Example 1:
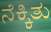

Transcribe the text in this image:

ನೆಕ್ಕಿತು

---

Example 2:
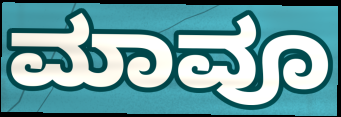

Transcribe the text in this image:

ಮಾವೂ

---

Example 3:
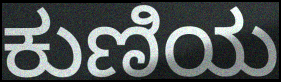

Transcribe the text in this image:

ಕುಣಿಯ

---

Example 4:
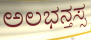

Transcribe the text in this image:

ಅಲಭನ್ತಸ್ಸ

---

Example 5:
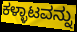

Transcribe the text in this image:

ಕಳ್ಳಾಟವನ್ನು